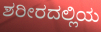
ಶರೀರದಲ್ಲಿಯ